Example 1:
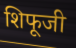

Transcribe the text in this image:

शिफूजी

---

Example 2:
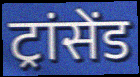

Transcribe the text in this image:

ट्रांसेंड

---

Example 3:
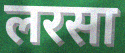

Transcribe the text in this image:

लरसा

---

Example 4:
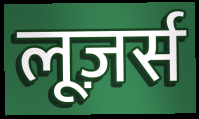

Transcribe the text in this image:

लूज़र्स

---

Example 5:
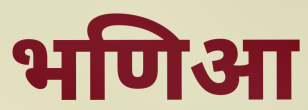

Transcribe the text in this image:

भणिआ